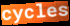
cycles